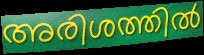
അരിശത്തിൽ